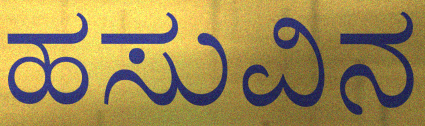
ಹಸುವಿನ